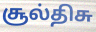
சூல்திசு